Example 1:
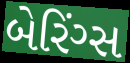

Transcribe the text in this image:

બેરિંગ્સ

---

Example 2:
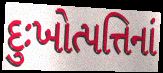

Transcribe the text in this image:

દુઃખોત્પત્તિનાં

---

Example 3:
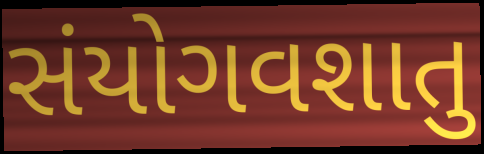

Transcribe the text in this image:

સંયોગવશાતુ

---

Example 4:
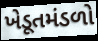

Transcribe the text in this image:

ખેડૂતમંડળો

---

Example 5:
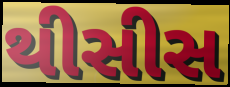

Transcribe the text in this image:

થીસીસ